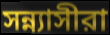
সন্ন্যাসীরা